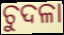
ଚୁଦଳା